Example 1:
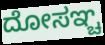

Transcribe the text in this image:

ದೋಸಞ್ಚ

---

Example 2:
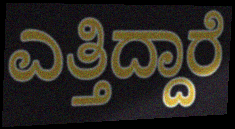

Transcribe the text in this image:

ಎತ್ತಿದ್ದಾರೆ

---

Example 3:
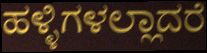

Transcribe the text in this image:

ಹಳ್ಳಿಗಳಲ್ಲಾದರೆ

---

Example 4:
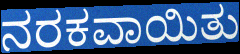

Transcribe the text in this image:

ನರಕವಾಯಿತು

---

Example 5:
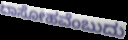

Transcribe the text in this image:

ದಾಸೋಹವೆಂಬುದು